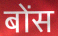
बोंस